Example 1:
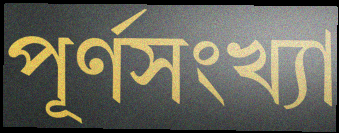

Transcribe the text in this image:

পূর্ণসংখ্যা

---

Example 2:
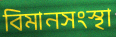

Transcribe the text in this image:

বিমানসংস্থা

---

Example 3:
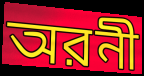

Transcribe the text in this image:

অরনী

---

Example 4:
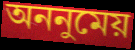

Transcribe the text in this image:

অননুমেয়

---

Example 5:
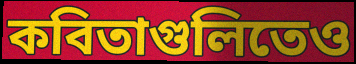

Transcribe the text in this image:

কবিতাগুলিতেও